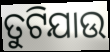
ତୁଟିଯାଉ